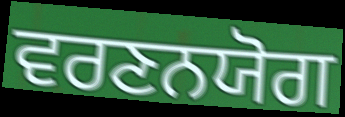
ਵਰਣਨਯੋਗ